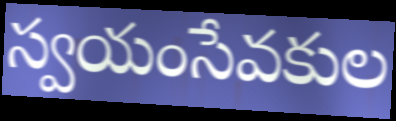
స్వయంసేవకుల